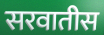
सरवातीस